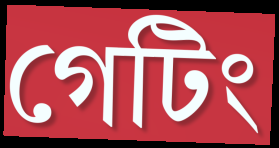
গেটিং